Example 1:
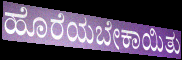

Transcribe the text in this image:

ಹೊರೆಯಬೇಕಾಯಿತು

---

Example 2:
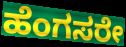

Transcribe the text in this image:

ಹೆಂಗಸರೇ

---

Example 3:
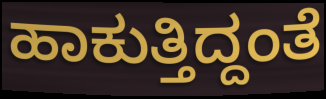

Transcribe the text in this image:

ಹಾಕುತ್ತಿದ್ದಂತೆ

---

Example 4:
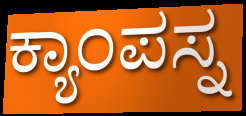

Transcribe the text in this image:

ಕ್ಯಾಂಪಸ್ನ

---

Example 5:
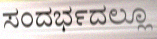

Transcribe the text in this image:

ಸಂದರ್ಭದಲ್ಲೂ